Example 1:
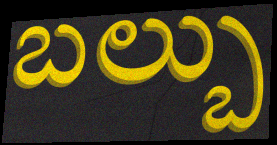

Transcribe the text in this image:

బల్బు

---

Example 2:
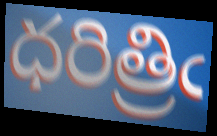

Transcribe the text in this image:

ధరిత్రిఁ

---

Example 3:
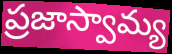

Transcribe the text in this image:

ప్రజాస్వామ్య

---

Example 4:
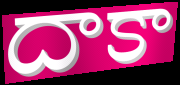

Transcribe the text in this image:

దాకా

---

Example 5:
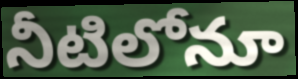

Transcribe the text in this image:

నీటిలోనూ